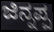
ಜಿನ್ನಪ್ಪ